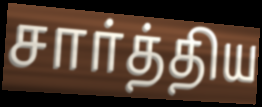
சார்த்திய